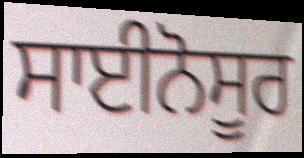
ਸਾਈਨੋਸੂਰ